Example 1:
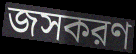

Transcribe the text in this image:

জসকরণ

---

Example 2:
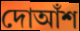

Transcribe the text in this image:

দোআঁশ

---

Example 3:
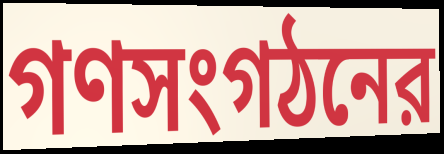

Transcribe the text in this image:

গণসংগঠনের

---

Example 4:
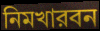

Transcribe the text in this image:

নিমখারবন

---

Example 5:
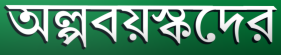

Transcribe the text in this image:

অল্পবয়স্কদের